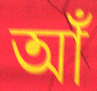
আঁ